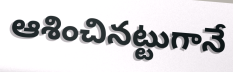
ఆశించినట్టుగానే